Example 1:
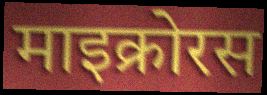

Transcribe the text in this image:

माइक्रोरस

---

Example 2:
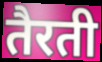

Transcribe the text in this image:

तैरती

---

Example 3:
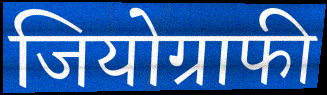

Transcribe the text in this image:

जियोग्राफी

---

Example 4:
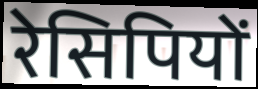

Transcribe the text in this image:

रेसिपियों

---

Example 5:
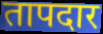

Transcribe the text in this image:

तापदार